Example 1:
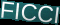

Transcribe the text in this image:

FICCI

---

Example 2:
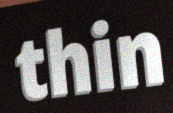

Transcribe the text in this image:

thin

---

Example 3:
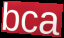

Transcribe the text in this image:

bca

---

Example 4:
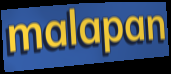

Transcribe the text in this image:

malapan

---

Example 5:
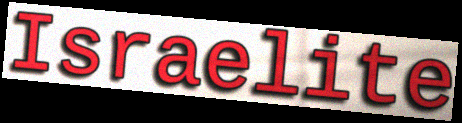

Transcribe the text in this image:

Israelite